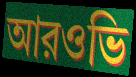
আরওভি